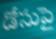
డోసుపై